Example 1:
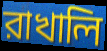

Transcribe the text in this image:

রাখালি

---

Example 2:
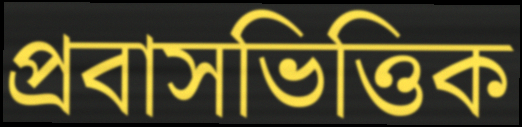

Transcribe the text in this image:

প্রবাসভিত্তিক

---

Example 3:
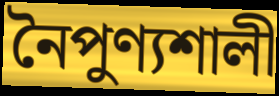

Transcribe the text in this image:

নৈপুণ্যশালী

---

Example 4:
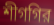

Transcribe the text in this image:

শীগগির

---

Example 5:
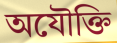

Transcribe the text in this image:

অযৌক্তি